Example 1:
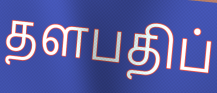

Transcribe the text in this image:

தளபதிப்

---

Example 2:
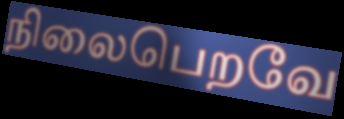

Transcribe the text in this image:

நிலைபெறவே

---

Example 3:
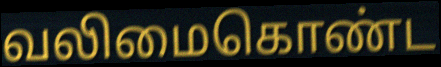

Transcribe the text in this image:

வலிமைகொண்ட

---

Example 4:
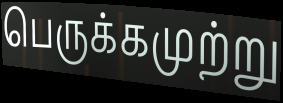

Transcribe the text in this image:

பெருக்கமுற்று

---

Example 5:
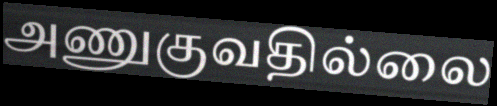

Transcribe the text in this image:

அணுகுவதில்லை